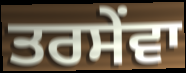
ਤਰਸੇਂਵਾ